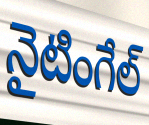
నైటింగేల్